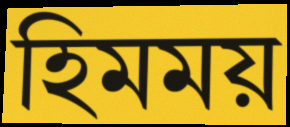
হিমময়